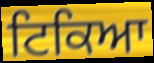
ਟਿਕਿਆ